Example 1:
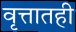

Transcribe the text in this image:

वृत्तातही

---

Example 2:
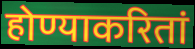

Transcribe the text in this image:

होण्याकरितां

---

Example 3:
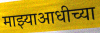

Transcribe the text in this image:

माझ्याआधीच्या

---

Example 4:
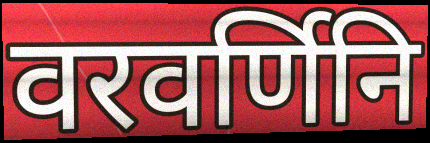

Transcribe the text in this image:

वरवर्णिनि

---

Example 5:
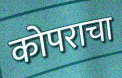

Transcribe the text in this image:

कोपराचा